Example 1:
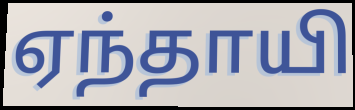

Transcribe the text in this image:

ஏந்தாயி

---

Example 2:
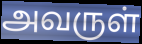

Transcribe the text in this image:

அவருள்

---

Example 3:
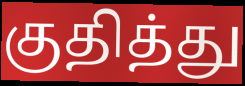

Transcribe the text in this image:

குதித்து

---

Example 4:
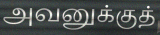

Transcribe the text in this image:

அவனுக்குத்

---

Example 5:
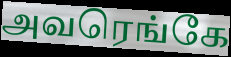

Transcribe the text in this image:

அவரெங்கே